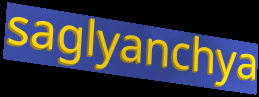
saglyanchya